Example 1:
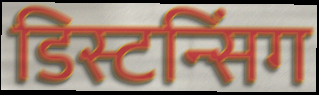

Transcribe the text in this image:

डिस्टन्सिंग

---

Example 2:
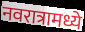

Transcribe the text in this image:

नवरात्रामध्ये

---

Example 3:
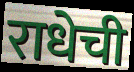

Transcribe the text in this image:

राधेची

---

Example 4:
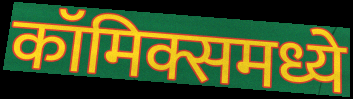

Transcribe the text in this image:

कॉमिक्समध्ये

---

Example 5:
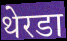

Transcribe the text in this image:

थेरडा